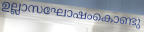
ഉല്ലാസഘോഷംകൊണ്ടു